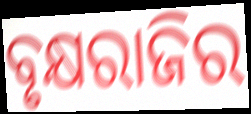
ବୃକ୍ଷରାଜିର